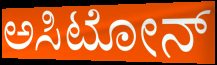
ಅಸಿಟೋನ್